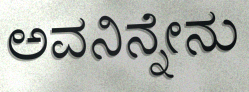
ಅವನಿನ್ನೇನು